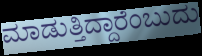
ಮಾಡುತ್ತಿದ್ದಾರೆಂಬುದು